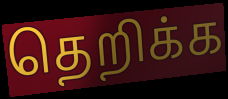
தெறிக்க